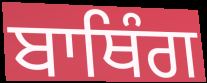
ਬਾਥਿੰਗ